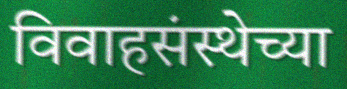
विवाहसंस्थेच्या